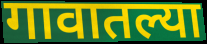
गावातल्या